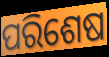
ପରିଶେଷ